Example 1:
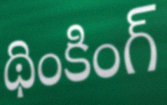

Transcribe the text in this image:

థింకింగ్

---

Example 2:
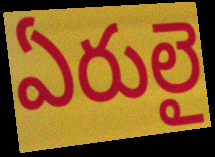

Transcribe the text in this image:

ఏరులై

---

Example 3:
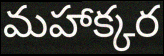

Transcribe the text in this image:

మహాక్కర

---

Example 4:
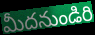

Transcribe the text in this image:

మీదనుండిరి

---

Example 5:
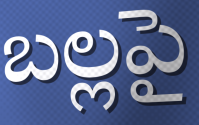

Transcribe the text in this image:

బల్లపై